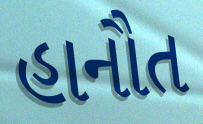
હાનૌત